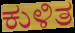
ಕುಳಿತ